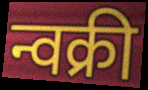
न्वक्री